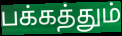
பக்கத்தும்